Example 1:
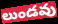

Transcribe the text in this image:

లుండవు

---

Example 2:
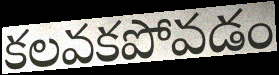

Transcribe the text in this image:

కలవకపోవడం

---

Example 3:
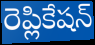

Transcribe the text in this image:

రెప్లికేషన్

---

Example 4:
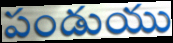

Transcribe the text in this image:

పండుయు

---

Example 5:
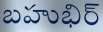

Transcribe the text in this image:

బహుభిర్